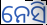
ନେସି